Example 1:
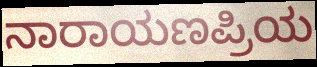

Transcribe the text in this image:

ನಾರಾಯಣಪ್ರಿಯ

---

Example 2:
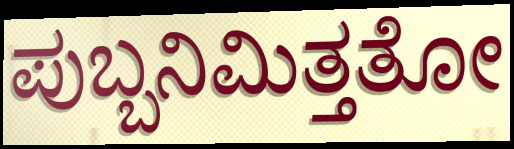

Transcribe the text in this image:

ಪುಬ್ಬನಿಮಿತ್ತತೋ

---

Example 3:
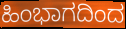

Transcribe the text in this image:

ಹಿಂಭಾಗದಿಂದ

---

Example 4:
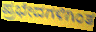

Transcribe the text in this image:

ಪ್ರಭೇದಗಳಿಗಿಂತ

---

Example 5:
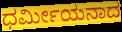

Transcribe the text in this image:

ಧರ್ಮೀಯನಾದ